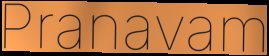
Pranavam